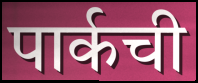
पार्कची